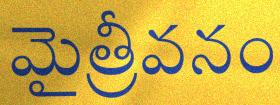
మైత్రీవనం